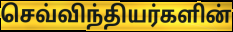
செவ்விந்தியர்களின்